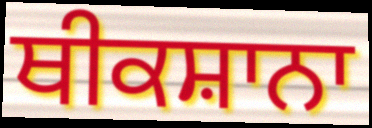
ਥੀਕਸ਼ਾਨਾ